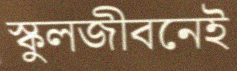
স্কুলজীবনেই